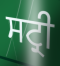
ਸਟ੍ਰੀ